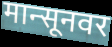
मान्सूनवर